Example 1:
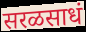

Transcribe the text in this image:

सरळसाधं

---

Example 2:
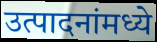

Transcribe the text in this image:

उत्पादनांमध्ये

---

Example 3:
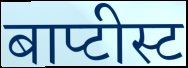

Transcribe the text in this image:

बाप्टीस्ट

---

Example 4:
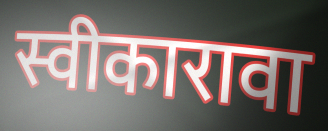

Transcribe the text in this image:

स्वीकारावा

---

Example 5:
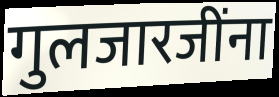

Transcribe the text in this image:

गुलजारजींना